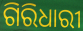
ଗିରିଧାରୀ